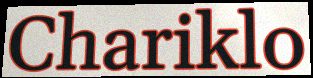
Chariklo